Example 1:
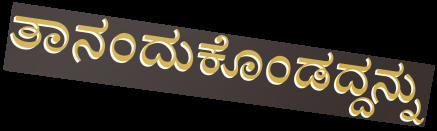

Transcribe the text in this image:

ತಾನಂದುಕೊಂಡದ್ದನ್ನು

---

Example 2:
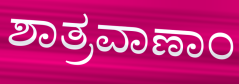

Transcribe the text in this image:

ಶಾತ್ರವಾಣಾಂ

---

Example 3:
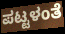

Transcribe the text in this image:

ಪಟ್ಟಳಂತೆ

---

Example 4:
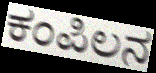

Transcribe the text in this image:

ಕಂಪಿಲನ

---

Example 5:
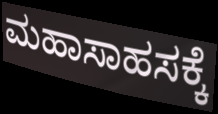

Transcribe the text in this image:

ಮಹಾಸಾಹಸಕ್ಕೆ